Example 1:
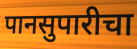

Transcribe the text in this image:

पानसुपारीचा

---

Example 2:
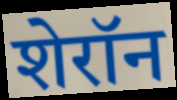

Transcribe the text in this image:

शेरॉन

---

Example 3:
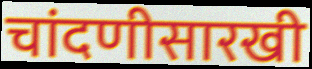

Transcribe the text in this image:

चांदणीसारखी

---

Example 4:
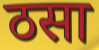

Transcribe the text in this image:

ठसा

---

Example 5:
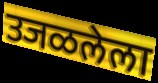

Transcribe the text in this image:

उजळलेला